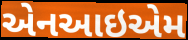
એનઆઇએમ